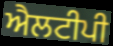
ਐਲਟੀਪੀ